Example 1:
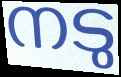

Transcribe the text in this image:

നടു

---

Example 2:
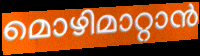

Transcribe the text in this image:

മൊഴിമാറ്റാൻ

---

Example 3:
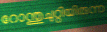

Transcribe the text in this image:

റോന്തുചുറ്റിയിരുന്ന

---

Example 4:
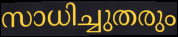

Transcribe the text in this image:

സാധിച്ചുതരും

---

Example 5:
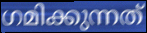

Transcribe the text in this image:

ഗമിക്കുന്നത്